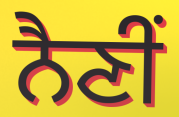
ਨੈਣੀਂ